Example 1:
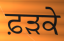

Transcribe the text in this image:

ਫ਼ਡ਼ਕੇ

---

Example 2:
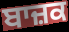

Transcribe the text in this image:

ਬਾਜ਼ਕ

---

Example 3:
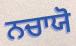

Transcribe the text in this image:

ਨਚਾਯੋ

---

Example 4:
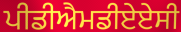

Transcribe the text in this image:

ਪੀਡੀਐਮਡੀਏਏਸੀ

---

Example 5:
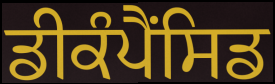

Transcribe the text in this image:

ਡੀਕੰਪੈਂਸਿਡ